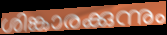
ശിങ്കാരക്കുന്നും